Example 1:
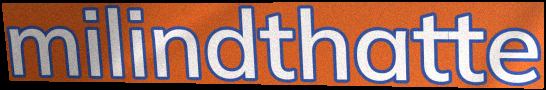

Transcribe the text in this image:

milindthatte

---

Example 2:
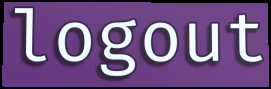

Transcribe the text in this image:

logout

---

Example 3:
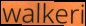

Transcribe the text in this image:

walkeri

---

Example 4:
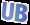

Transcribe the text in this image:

UB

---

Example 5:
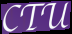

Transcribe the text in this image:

CTU